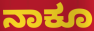
ನಾಕೂ